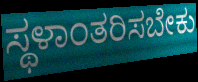
ಸ್ಥಳಾಂತರಿಸಬೇಕು